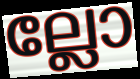
ല്ലോ